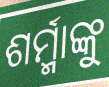
ଶର୍ମ୍ମାଙ୍କୁ